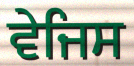
ਵੇਜਿਸ